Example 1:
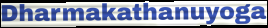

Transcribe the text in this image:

Dharmakathanuyoga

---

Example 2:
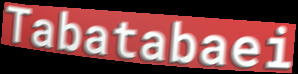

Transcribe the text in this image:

Tabatabaei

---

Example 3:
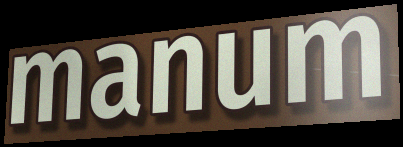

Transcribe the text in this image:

manum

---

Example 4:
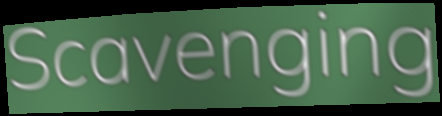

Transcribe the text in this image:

Scavenging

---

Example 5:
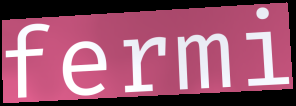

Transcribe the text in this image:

fermi